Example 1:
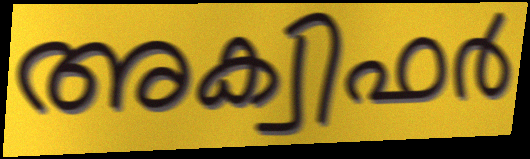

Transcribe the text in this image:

അക്വിഫർ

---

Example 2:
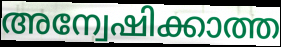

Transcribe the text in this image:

അന്വേഷിക്കാത്ത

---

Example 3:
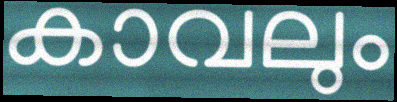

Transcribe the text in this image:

കാവലും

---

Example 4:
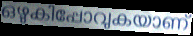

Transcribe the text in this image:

ഒഴുകിപ്പോവുകയാണ്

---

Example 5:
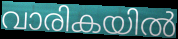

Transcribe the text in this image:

വാരികയിൽ